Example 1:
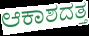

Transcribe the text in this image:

ಆಕಾಶದತ್ತ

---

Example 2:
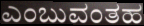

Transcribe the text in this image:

ಎಂಬುವಂತಹ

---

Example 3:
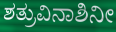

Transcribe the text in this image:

ಶತ್ರುವಿನಾಶಿನೀ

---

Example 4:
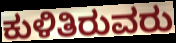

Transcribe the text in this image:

ಕುಳಿತಿರುವರು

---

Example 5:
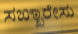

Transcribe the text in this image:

ಸಙ್ಖಾರೇಸು